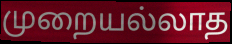
முறையல்லாத